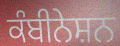
ਕੰਬੀਨੇਸ਼ਨ